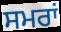
ਸਮਰਾਂ